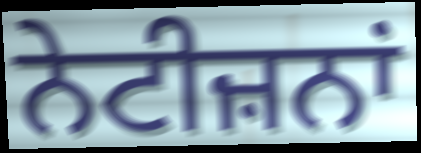
ਨੇਟੀਜ਼ਨਾਂ